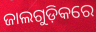
ଜାଲଗୁଡ଼ିକରେ